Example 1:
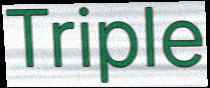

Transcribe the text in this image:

Triple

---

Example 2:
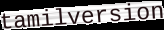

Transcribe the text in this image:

tamilversion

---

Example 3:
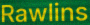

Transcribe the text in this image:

Rawlins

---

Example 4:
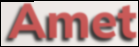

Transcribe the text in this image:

Amet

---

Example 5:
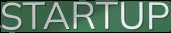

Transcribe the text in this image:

STARTUP